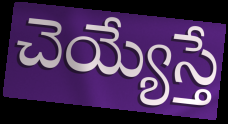
చెయ్యేస్తే